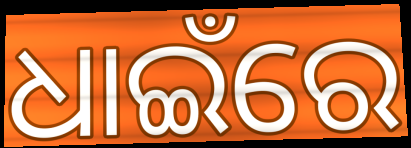
ଧାଇଁରେ